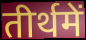
तीर्थमें